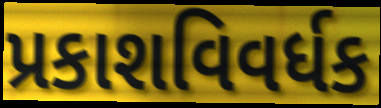
પ્રકાશવિવર્ધક